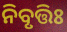
ନିବୃତ୍ତିଃ